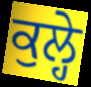
ਕੁਲ੍ਹੇ